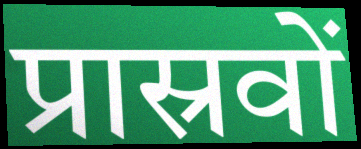
प्रास्रवों